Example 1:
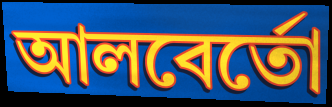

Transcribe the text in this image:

আলবের্তো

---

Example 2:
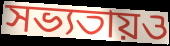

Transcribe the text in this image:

সভ্যতায়ও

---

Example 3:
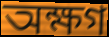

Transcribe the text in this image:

অক্ষগ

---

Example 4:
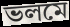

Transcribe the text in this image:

ভলমে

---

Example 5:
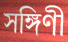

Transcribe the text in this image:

সঙ্গিণী